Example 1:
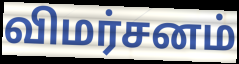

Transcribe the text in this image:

விமர்சனம்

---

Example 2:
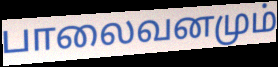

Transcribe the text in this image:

பாலைவனமும்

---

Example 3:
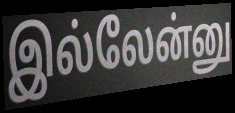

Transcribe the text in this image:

இல்லேன்னு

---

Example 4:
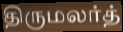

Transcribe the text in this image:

திருமலர்த்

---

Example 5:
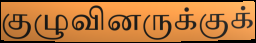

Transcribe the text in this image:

குழுவினருக்குக்